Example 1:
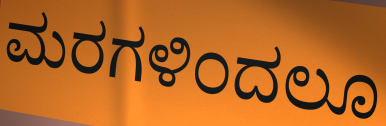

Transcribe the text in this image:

ಮರಗಳಿಂದಲೂ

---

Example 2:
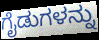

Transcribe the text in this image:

ಗೈಡುಗಳನ್ನು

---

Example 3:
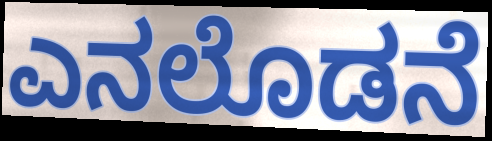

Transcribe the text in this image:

ಎನಲೊಡನೆ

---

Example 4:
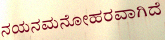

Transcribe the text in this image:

ನಯನಮನೋಹರವಾಗಿದೆ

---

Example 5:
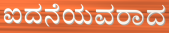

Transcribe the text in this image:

ಐದನೆಯವರಾದ